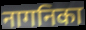
नागनिका